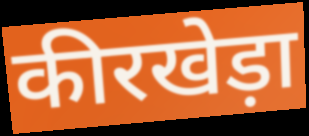
कीरखेड़ा